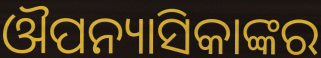
ଔପନ୍ୟାସିକାଙ୍କର